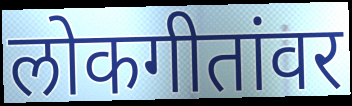
लोकगीतांवर